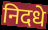
निदधे